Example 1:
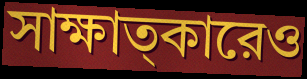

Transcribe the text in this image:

সাক্ষাত্কারেও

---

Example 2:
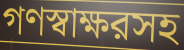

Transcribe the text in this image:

গণস্বাক্ষরসহ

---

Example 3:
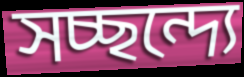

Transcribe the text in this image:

সচ্ছন্দ্যে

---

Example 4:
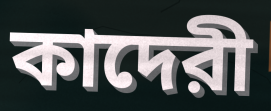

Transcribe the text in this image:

কাদেরী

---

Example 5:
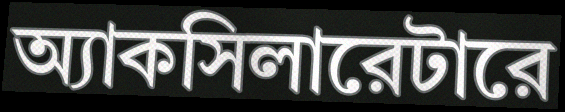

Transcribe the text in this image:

অ্যাকসিলারেটারে